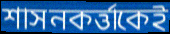
শাসনকর্ত্তাকেই